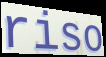
riso